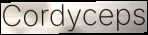
Cordyceps